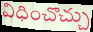
విధించొచ్చు